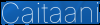
Caitaani